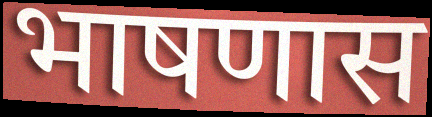
भाषणास